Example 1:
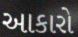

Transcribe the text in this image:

આકારો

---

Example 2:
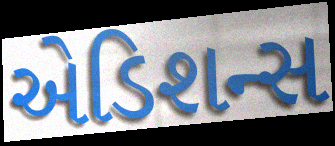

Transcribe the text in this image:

એડિશન્સ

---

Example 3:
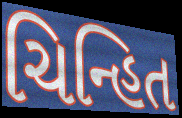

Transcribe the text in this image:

ચિન્હિત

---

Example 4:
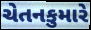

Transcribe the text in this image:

ચેતનકુમારે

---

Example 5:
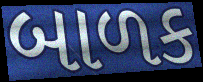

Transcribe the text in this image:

બાળક